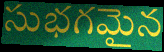
సుభగమైన